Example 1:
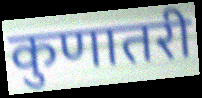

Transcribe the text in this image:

कुणातरी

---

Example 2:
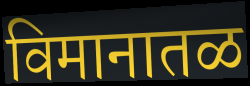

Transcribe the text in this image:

विमानातळ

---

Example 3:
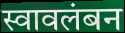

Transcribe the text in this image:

स्वावलंबन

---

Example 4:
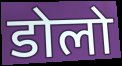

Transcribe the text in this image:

डोलो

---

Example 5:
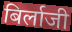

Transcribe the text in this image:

बिर्लाजी